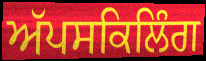
ਅੱਪਸਕਿਲਿੰਗ